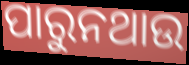
ପାରୁନଥାଉ